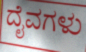
ದೈವಗಳು